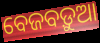
ବେଜବଡ଼ୁଆ